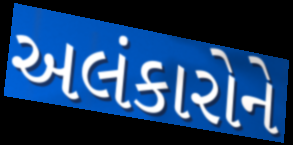
અલંકારોને